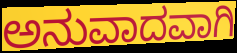
ಅನುವಾದವಾಗಿ